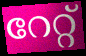
റേറ്റ്